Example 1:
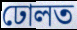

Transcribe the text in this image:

ঢোলত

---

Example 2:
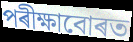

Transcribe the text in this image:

পৰীক্ষাবোৰত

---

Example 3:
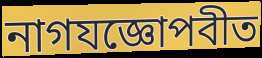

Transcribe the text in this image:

নাগযজ্ঞোপবীত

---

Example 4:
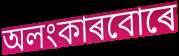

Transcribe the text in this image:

অলংকাৰবোৰে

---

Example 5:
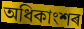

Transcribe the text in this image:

অধিকাংশৰ